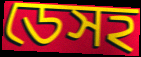
ডেসহ